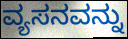
ವ್ಯಸನವನ್ನು